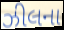
ઝીલના